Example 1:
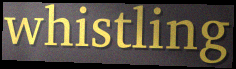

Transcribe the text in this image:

whistling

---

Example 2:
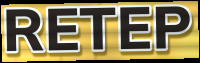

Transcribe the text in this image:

RETEP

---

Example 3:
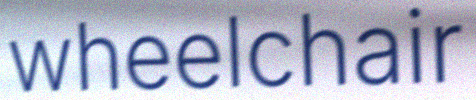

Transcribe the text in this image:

wheelchair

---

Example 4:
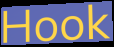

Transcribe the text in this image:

Hook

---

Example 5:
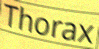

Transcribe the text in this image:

Thorax